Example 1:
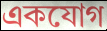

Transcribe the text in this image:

একযোগ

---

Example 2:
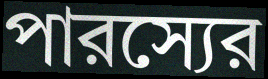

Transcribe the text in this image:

পারস্যের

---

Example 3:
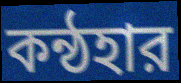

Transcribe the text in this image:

কন্ঠহার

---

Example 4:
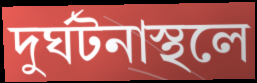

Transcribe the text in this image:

দুর্ঘটনাস্থলে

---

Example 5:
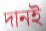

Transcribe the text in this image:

দানই